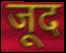
जूद